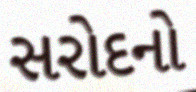
સરોદનો